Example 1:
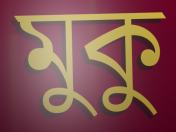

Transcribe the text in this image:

মুকু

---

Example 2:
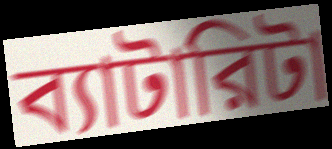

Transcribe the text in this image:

ব্যাটারিটা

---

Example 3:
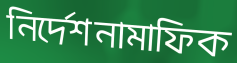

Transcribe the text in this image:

নির্দেশনামাফিক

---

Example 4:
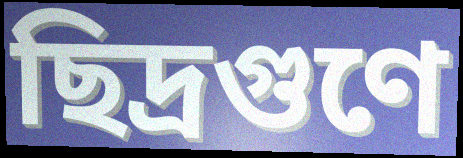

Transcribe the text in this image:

ছিদ্রগুণে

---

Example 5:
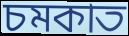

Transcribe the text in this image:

চমকাত